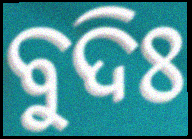
ବୁଦିଃ